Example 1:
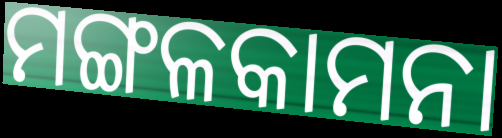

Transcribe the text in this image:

ମଙ୍ଗଳକାମନା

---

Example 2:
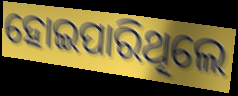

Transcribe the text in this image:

ହୋଇପାରିଥିଲେ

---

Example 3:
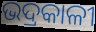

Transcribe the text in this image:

ଭଦ୍ରକାଳୀ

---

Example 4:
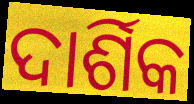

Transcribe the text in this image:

ଦାର୍ଶିକ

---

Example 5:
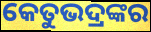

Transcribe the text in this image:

କେତୁଭଦ୍ରଙ୍କର